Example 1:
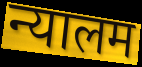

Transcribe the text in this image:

न्यालम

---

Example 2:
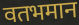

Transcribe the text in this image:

वतभमान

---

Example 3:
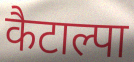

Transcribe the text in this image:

कैटाल्पा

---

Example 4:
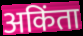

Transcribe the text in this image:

अकिंता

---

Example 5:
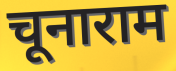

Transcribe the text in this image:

चूनाराम